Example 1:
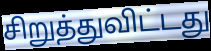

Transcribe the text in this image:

சிறுத்துவிட்டது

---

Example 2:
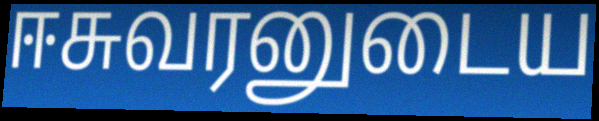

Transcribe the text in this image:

ஈசுவரனுடைய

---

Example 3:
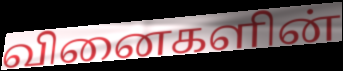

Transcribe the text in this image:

வினைகளின்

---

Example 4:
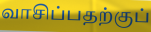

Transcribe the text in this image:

வாசிப்பதற்குப்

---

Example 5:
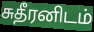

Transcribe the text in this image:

சுதீரனிடம்